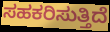
ಸಹಕರಿಸುತ್ತಿದೆ